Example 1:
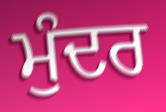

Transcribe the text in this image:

ਮੁੰਦਰ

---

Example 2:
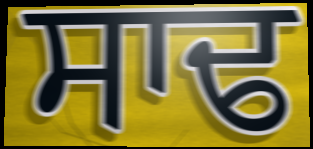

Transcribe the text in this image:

ਸਾਢ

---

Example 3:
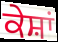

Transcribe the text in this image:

ਕੇਸ਼ਾਂ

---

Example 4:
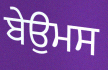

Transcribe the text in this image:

ਬੇਉਮਸ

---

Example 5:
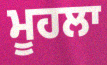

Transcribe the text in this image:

ਮੂਹਲਾ